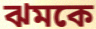
ঝমকে